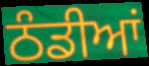
ਠੰਡੀਆਂ